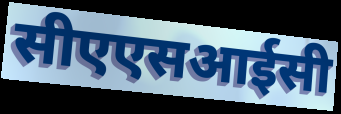
सीएएसआईसी